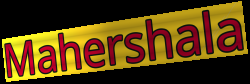
Mahershala